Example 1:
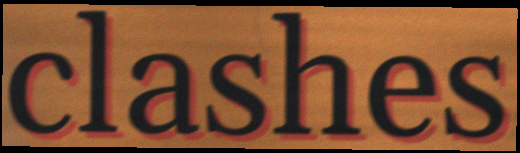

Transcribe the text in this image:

clashes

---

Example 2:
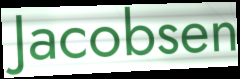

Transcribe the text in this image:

Jacobsen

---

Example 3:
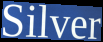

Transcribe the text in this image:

Silver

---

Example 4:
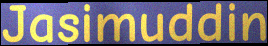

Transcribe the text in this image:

Jasimuddin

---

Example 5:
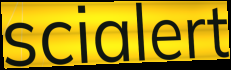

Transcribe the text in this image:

scialert